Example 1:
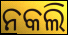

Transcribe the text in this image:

ନକଲି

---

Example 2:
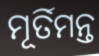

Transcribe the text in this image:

ମୂର୍ତିମନ୍ତ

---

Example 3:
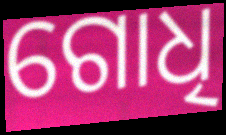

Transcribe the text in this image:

ଗୋଧି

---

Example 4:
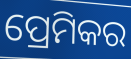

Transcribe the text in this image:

ପ୍ରେମିକର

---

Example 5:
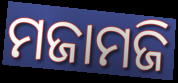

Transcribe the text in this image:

ମଜାମଜି